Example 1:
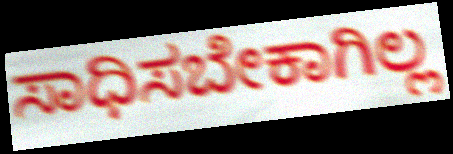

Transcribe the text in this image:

ಸಾಧಿಸಬೇಕಾಗಿಲ್ಲ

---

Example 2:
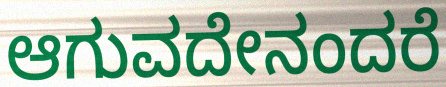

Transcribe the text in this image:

ಆಗುವದೇನಂದರೆ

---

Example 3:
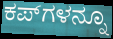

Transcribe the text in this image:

ಕಪ್‌ಗಳನ್ನೂ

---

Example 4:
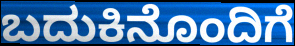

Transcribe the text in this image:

ಬದುಕಿನೊಂದಿಗೆ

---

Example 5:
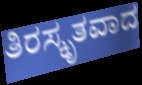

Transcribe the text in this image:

ತಿರಸ್ಕೃತವಾದ